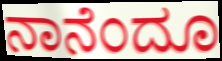
ನಾನೆಂದೂ